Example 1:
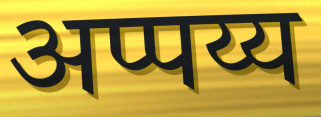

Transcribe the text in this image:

अप्पय्य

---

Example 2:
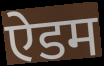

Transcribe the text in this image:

ऐडम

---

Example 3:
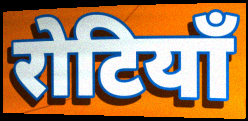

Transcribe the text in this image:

रोटियाँ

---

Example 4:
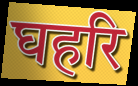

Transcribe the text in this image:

घहरि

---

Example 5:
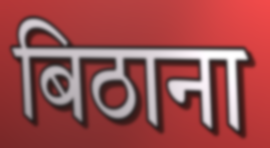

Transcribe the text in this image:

बिठाना